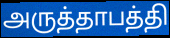
அருத்தாபத்தி